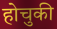
होचुकी